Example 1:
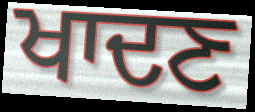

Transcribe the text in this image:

ਖਾਦਣ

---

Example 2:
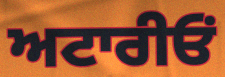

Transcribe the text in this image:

ਅਟਾਰੀਓਂ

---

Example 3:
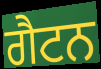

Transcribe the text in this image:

ਗੈਟਨ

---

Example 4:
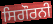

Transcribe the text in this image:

ਸਿਗੌਰਨੀ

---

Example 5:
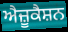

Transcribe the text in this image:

ਐਜ਼ੂਕੈਸ਼ਨ